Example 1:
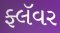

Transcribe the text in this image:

ફ્લૅવર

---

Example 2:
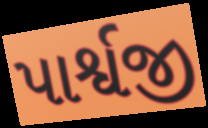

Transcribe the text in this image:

પાર્શ્વજી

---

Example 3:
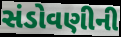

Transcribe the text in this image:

સંડોવણીની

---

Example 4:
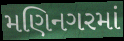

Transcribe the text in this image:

મણિનગરમાં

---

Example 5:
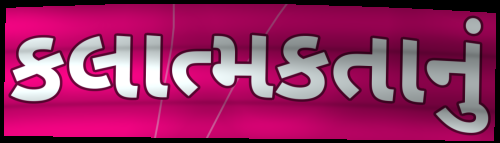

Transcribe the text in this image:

કલાત્મકતાનું